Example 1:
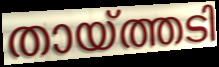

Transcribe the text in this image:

തായ്ത്തടി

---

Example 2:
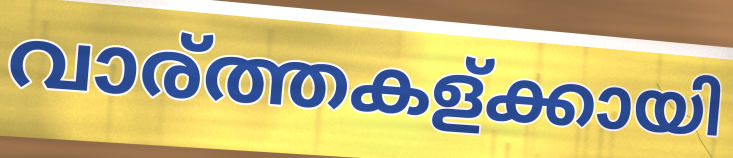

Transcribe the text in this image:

വാര്ത്തകള്ക്കായി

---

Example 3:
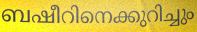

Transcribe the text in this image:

ബഷീറിനെക്കുറിച്ചും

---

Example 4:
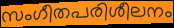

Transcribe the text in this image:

സംഗീതപരിശീലനം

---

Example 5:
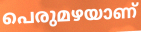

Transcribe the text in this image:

പെരുമഴയാണ്